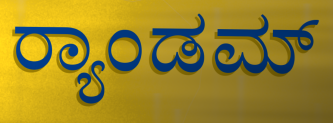
ರ್‍ಯಾಂಡಮ್